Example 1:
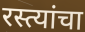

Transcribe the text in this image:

रस्त्यांचा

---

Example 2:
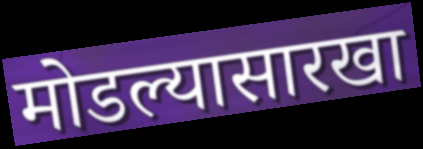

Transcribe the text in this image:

मोडल्यासारखा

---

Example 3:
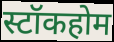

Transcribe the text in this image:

स्टॉकहोम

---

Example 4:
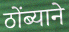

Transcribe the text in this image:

ठोंब्याने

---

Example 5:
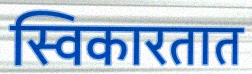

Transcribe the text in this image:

स्विकारतात